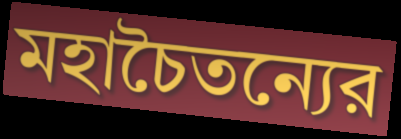
মহাচৈতন্যের